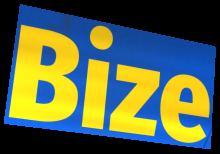
Bize